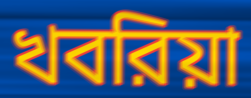
খবরিয়া